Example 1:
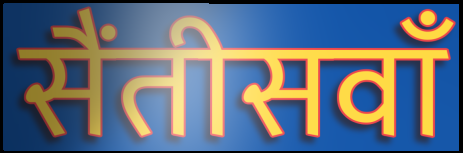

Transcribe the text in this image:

सैंतीसवाँ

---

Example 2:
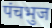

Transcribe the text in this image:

पंचभुज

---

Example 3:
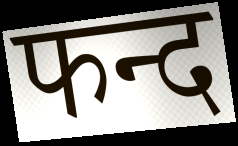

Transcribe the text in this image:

फन्द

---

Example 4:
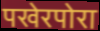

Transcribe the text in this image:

पखेरपोरा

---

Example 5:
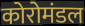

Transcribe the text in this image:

कोरोमंडल